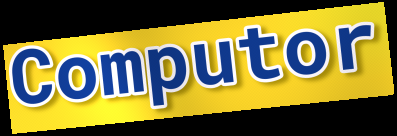
Computor